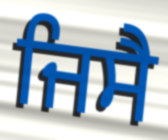
ਜਿਸੈ